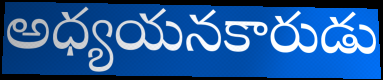
అధ్యయనకారుడు